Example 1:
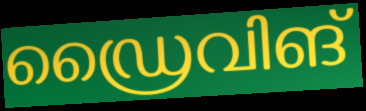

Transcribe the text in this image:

ഡ്രൈവിങ്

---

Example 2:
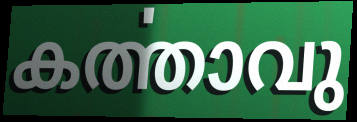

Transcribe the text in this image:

കൎത്താവു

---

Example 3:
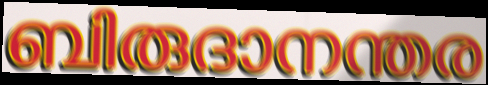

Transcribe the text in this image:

ബിരുദാനന്തര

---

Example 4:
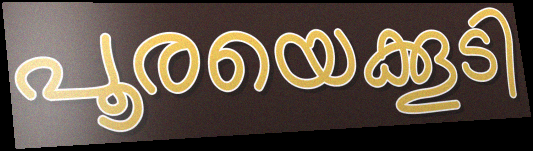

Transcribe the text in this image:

പൂരയെക്കൂടി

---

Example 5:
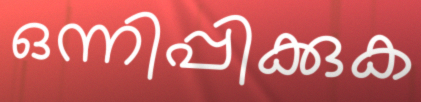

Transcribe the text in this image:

ഒന്നിപ്പിക്കുക